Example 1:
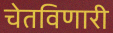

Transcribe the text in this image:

चेतविणारी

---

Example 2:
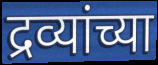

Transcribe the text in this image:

द्रव्यांच्या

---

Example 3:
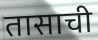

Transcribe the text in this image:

तासाची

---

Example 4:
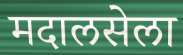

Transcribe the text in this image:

मदालसेला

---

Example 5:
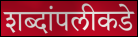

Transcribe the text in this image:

शब्दांपलीकडे